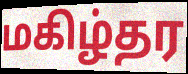
மகிழ்தர